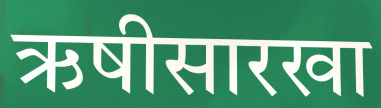
ऋषीसारखा